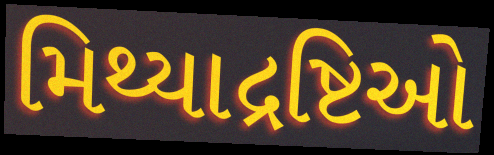
મિથ્યાદ્રષ્ટિઓ